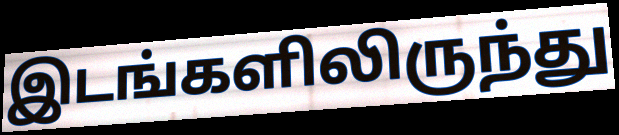
இடங்களிலிருந்து